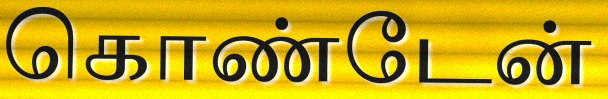
கொண்டேன்